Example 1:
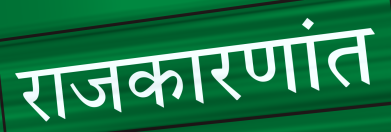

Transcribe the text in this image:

राजकारणांत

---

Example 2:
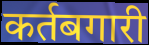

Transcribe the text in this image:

कर्तबगारी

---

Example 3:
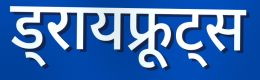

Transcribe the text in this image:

ड्रायफ्रूट्स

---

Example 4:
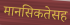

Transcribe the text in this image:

मानसिकतेसह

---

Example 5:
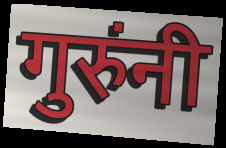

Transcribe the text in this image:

गुरुंनी